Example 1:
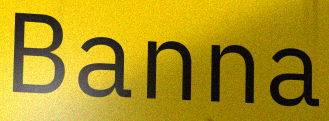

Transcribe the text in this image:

Banna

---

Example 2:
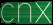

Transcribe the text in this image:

cnx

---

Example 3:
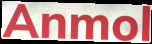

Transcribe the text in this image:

Anmol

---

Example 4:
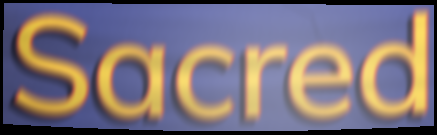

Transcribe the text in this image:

Sacred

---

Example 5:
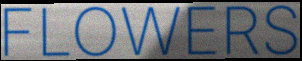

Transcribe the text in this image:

FLOWERS